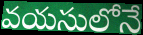
వయసులోనే